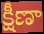
క్షీణా